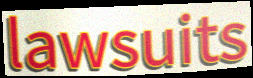
lawsuits